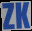
ZK